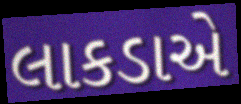
લાકડાએ